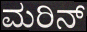
ಮರಿನ್